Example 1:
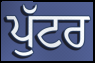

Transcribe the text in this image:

ਪੁੱਟਰ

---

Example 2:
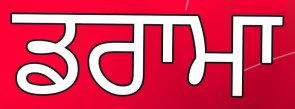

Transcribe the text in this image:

ਡਰਾਮਾ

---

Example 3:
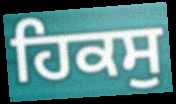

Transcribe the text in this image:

ਹਿਕਸੁ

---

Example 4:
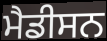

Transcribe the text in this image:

ਮੈਡੀਸਨ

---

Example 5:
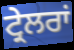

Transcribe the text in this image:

ਟ੍ਰੇਲਰਾਂ